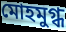
মোহমুগ্ধ